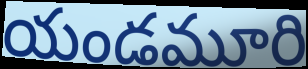
యండమూరి